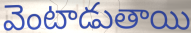
వెంటాడుతాయి